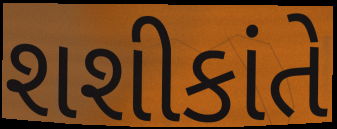
શશીકાંતે